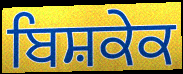
ਬਿਸ਼ਕੇਕ